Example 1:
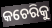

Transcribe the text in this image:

କଚେରିକୁ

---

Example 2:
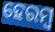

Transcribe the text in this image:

ହେରମ୍ୱ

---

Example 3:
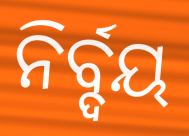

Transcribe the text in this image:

ନିର୍ବ୍ଦୟ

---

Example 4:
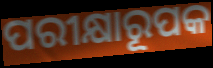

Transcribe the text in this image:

ପରୀକ୍ଷାରୂପକ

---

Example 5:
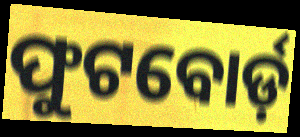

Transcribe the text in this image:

ଫୁଟବୋର୍ଡ଼